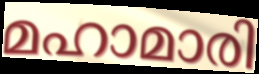
മഹാമാരി